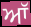
ਆੱ